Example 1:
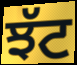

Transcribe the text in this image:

ਝੱਟ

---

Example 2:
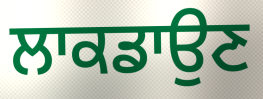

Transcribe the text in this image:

ਲਾਕਡਾਉਣ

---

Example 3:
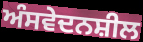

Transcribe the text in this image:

ਅੰਸਵੇਦਨਸ਼ੀਲ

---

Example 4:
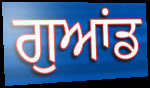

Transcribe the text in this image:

ਗੁਆਂਡ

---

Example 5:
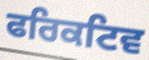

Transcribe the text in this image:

ਫਰਿਕਟਿਵ